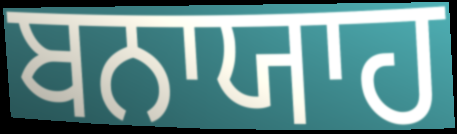
ਬਨਾਯਾਹ